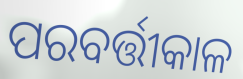
ପରବର୍ତ୍ତୀକାଳ